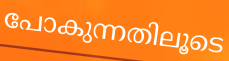
പോകുന്നതിലൂടെ